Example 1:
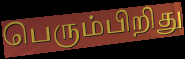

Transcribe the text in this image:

பெரும்பிறிது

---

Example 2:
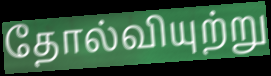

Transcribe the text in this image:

தோல்வியுற்று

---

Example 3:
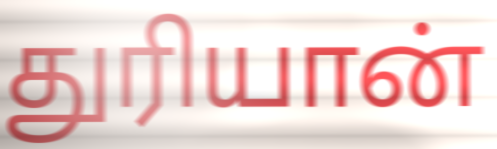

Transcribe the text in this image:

துரியான்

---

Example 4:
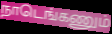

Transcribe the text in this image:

நாடெங்கணும்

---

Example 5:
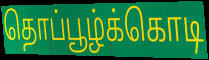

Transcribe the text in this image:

தொப்பூழ்க்கொடி